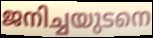
ജനിച്ചയുടനെ